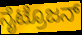
ನೈಟ್ರೊಜನ್